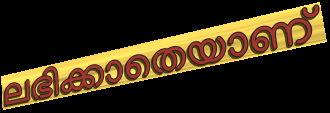
ലഭിക്കാതെയാണ്